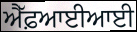
ਐੱਫ਼ਆਈਆਈ